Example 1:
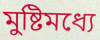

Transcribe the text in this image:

মুষ্টিমধ্যে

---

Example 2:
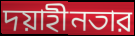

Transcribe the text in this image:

দয়াহীনতার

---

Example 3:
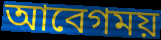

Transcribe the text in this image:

আবেগময়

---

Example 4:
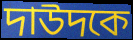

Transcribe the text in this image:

দাউদকে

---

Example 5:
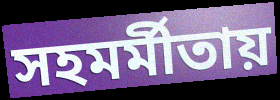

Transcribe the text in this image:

সহমর্মীতায়